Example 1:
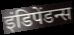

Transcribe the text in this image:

इंडिपेंडन्स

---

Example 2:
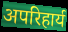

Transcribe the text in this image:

अपरिहार्य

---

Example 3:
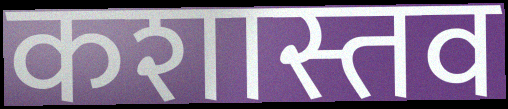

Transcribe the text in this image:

कशास्तव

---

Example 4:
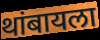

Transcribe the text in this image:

थांबायला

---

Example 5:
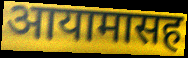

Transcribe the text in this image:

आयामासह